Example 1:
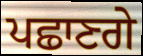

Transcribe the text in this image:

ਪਛਾਣਗੇ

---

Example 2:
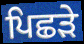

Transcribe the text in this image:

ਪਿਛੜੇ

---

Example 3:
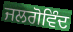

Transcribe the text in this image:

ਜਲਗੋਵਿੰਦ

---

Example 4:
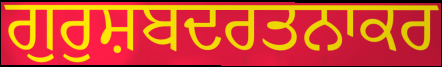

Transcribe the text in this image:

ਗੁਰੁਸ਼ਬਦਰਤਨਾਕਰ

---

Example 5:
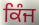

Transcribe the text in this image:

ਕਿੰਜ